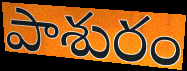
పాశురం